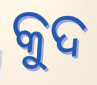
କୁଦ